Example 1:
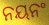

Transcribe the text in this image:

ନୟନଂ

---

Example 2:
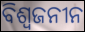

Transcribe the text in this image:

ବିଶ୍ବଜନୀନ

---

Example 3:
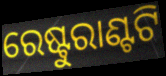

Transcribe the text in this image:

ରେଷ୍ଟୁରାଣ୍ଟଟି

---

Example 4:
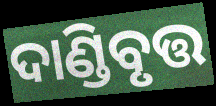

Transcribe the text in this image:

ଦାଣ୍ଡିବୃତ୍ତ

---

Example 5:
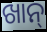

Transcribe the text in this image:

ଖାନ୍